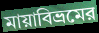
মায়াবিভ্রমের